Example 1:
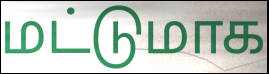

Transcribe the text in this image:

மட்டுமாக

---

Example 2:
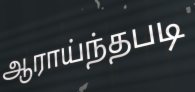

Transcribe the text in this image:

ஆராய்ந்தபடி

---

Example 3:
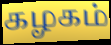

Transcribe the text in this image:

கழகம்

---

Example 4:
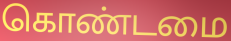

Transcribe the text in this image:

கொண்டமை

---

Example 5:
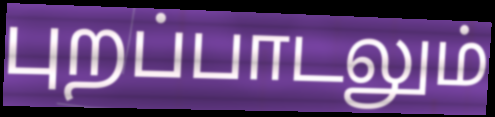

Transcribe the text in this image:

புறப்பாடலும்